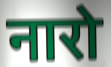
नारो